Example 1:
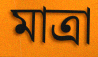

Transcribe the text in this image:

মাত্ৰা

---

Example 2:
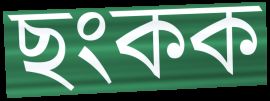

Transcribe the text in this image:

ছংকক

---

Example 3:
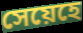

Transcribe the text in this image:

সেয়েহে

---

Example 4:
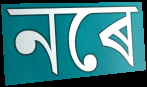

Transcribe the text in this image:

নৰে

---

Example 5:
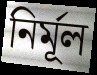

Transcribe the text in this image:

নিৰ্মূল